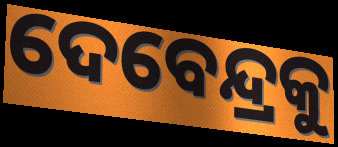
ଦେବେନ୍ଦ୍ରକୁ